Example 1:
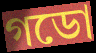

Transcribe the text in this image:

গডো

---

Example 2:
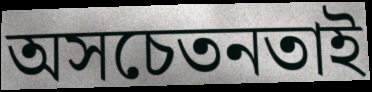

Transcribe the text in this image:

অসচেতনতাই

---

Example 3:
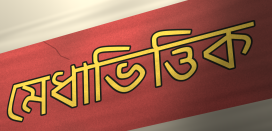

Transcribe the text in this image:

মেধাভিত্তিক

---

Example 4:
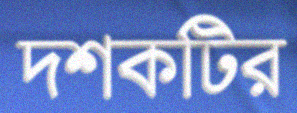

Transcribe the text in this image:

দশকটির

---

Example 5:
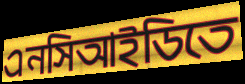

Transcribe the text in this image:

এনসিআইডিতে